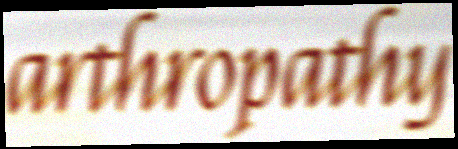
arthropathy